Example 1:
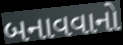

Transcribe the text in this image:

બનાવવાનો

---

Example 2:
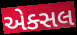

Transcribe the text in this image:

એક્સલ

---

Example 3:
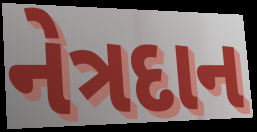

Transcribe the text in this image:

નેત્રદાન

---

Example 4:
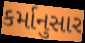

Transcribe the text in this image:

કર્માનુસાર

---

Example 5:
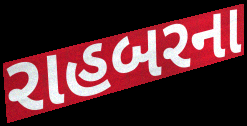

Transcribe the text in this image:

રાહબરના